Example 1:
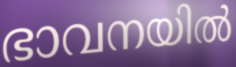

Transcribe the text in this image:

ഭാവനയിൽ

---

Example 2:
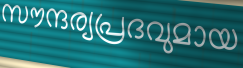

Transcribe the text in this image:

സൗന്ദര്യപ്രദവുമായ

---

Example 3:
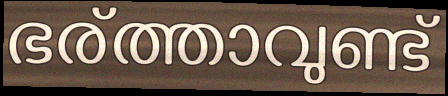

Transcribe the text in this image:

ഭര്ത്താവുണ്ട്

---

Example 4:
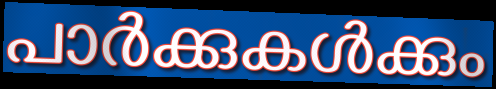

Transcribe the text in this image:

പാർക്കുകൾക്കും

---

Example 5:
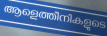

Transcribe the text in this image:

ആളെത്തീനികളുടെ